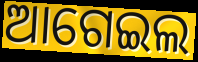
ଆଗେଇଲ